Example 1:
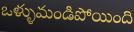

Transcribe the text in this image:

ఒళ్ళుమండిపోయింది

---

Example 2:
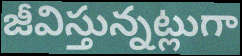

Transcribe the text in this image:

జీవిస్తున్నట్లుగా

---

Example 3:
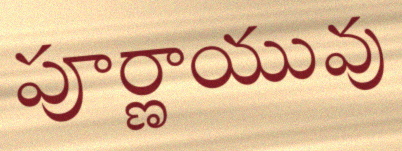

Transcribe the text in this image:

పూర్ణాయువు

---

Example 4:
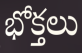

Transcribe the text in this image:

భోక్తలు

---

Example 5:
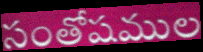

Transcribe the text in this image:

సంతోషముల